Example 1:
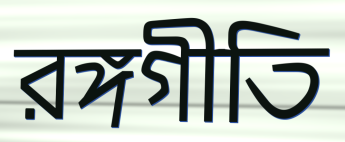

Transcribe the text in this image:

রঙ্গগীতি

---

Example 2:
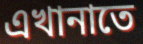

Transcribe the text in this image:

এখানাতে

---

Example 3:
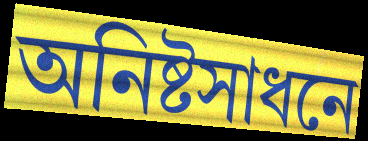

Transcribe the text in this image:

অনিষ্টসাধনে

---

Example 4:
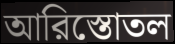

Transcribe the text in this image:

আরিস্তোতল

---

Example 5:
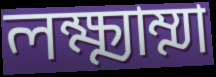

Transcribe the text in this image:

লক্ষ্মাম্মা